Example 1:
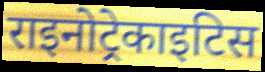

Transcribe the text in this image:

राइनोट्रेकाइटिस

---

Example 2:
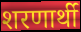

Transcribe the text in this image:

शरणार्थी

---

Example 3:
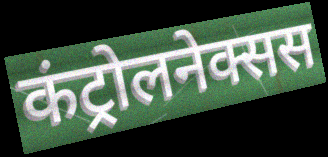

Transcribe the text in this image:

कंट्रोलनेक्सस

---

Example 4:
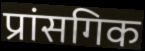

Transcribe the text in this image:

प्रांसगिक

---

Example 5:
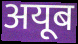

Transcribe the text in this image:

अयूब